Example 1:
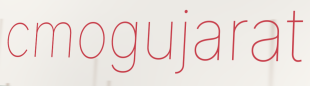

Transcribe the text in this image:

cmogujarat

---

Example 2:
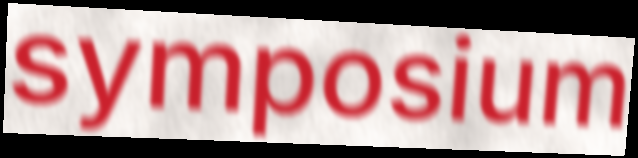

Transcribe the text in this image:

symposium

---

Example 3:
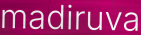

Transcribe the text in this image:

madiruva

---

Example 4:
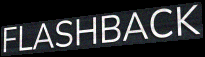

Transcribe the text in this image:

FLASHBACK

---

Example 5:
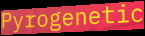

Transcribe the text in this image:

Pyrogenetic